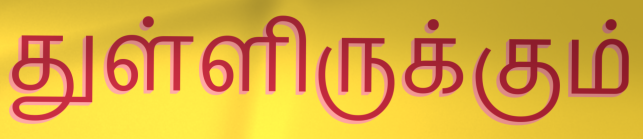
துள்ளிருக்கும்